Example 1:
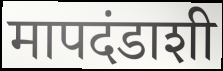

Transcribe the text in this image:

मापदंडाशी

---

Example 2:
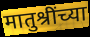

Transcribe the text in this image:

मातुश्रींच्या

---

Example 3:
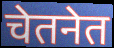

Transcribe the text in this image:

चेतनेत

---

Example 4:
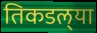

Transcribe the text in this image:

तिकडल्या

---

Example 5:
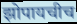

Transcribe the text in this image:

झोपायचीच